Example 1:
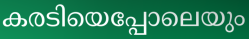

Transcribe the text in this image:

കരടിയെപ്പോലെയും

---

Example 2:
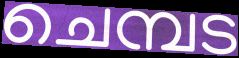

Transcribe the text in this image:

ചെമ്പട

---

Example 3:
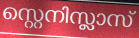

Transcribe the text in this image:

സ്റ്റെനിസ്ലാസ്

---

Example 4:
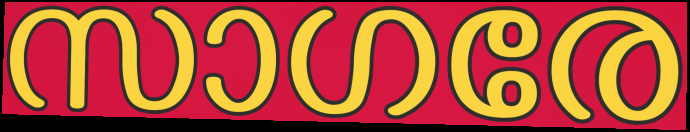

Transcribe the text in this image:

സാഗരേ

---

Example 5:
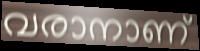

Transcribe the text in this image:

വരാനാണ്